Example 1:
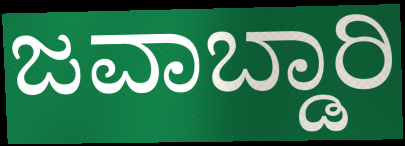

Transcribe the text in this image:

ಜವಾಬ್ಡಾರಿ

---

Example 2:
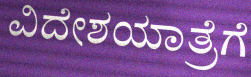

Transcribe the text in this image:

ವಿದೇಶಯಾತ್ರೆಗೆ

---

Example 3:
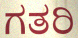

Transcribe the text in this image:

ಗತರಿ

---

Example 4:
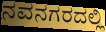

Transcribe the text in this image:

ನವನಗರದಲ್ಲಿ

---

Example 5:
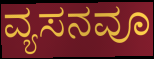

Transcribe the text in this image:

ವ್ಯಸನವೂ